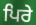
ਪਿਰੇ